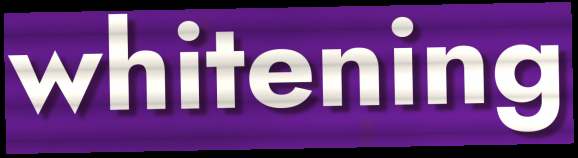
whitening